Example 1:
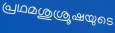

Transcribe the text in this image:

പ്രഥമശുശ്രൂഷയുടെ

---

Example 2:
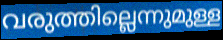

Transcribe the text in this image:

വരുത്തില്ലെന്നുമുള്ള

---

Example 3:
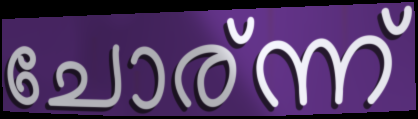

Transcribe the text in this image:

ചോര്ന്ന്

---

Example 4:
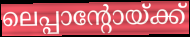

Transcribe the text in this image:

ലെപ്പാന്റോയ്ക്ക്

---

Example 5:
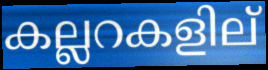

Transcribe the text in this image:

കല്ലറകളില്